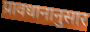
प्रावधानानुसार